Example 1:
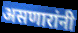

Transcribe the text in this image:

असणारांनी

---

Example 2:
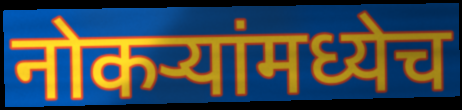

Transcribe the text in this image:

नोकऱ्यांमध्येच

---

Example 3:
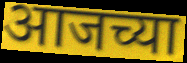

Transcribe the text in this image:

आजच्या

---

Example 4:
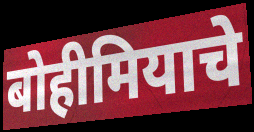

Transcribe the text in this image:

बोहीमियाचे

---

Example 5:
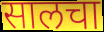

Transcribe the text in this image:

सालचा